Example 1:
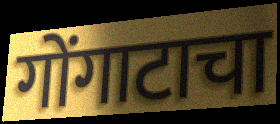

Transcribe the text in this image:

गोंगाटाचा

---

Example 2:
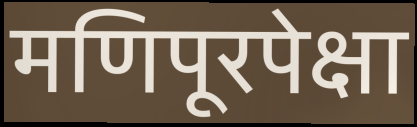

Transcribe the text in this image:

मणिपूरपेक्षा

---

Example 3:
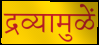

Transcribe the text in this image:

द्रव्यामुळें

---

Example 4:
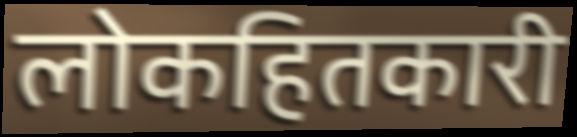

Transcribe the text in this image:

लोकहितकारी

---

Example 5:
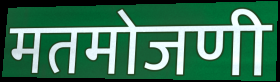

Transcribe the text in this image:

मतमोजणी